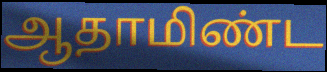
ஆதாமிண்ட